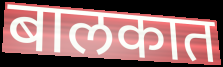
बालकात